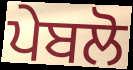
ਪੇਬਲੋ